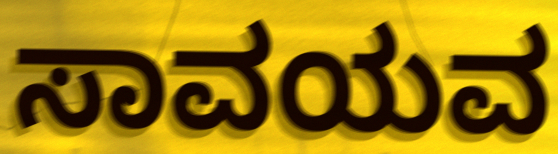
ಸಾವಯವ